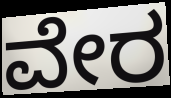
ವೇರ